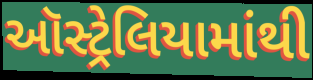
ઑસ્ટ્રેલિયામાંથી